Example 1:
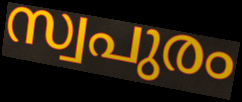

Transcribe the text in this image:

സ്വപുരം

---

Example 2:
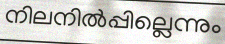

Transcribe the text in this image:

നിലനിൽപ്പില്ലെന്നും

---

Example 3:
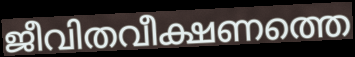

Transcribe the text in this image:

ജീവിതവീക്ഷണത്തെ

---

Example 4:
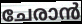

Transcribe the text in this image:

ചേരാൻ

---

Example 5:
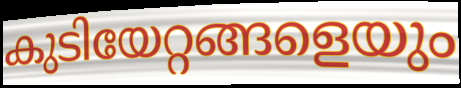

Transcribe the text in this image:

കുടിയേറ്റങ്ങളെയും